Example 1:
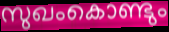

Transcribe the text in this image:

സുഖംകൊണ്ടും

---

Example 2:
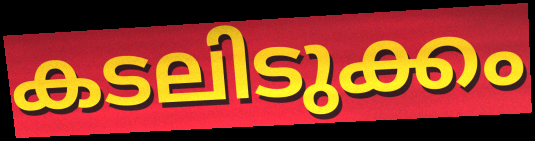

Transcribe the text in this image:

കടലിടുക്കം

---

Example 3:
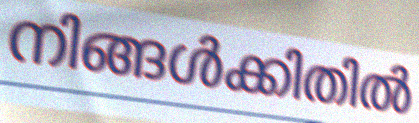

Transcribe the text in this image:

നിങ്ങൾക്കിതിൽ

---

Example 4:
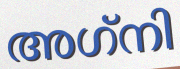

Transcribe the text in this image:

അഗ്‌നി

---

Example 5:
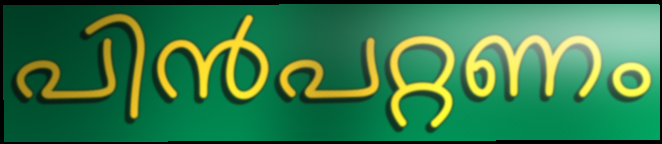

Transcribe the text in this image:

പിൻപറ്റണം